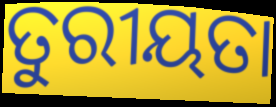
ତୁରୀୟତା